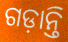
ଗଡ଼ାନ୍ତି